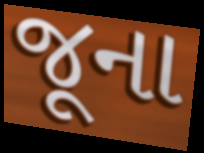
જૂના